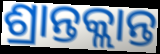
ଶ୍ରାନ୍ତକ୍ଲାନ୍ତ